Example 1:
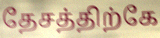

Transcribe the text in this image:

தேசத்திற்கே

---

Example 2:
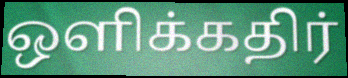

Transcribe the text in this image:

ஒளிக்கதிர்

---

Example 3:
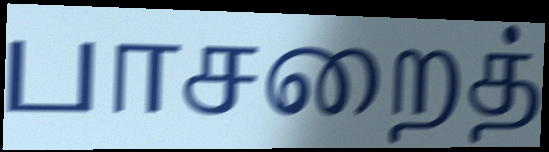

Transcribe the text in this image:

பாசறைத்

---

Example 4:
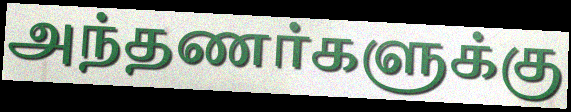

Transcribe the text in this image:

அந்தணர்களுக்கு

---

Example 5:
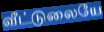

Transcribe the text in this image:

வீட்டுலையே